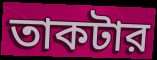
তাকটার